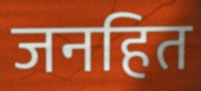
जनहित